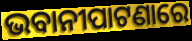
ଭବାନୀପାଟଣାରେ